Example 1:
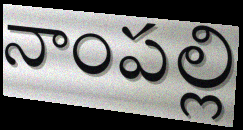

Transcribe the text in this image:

నాంపల్లి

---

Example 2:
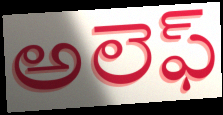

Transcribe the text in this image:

అలెఫ్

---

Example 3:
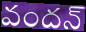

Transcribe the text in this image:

వందన్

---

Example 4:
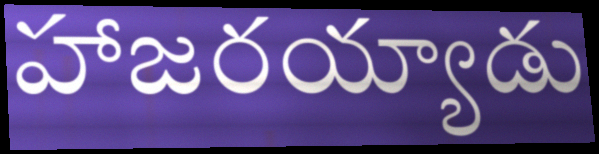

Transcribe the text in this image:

హాజరయ్యాడు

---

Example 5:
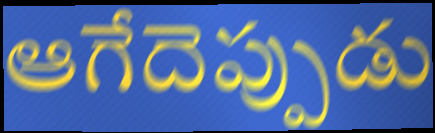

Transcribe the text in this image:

ఆగేదెప్పుడు